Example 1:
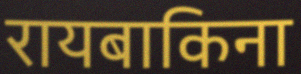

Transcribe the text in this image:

रायबाकिना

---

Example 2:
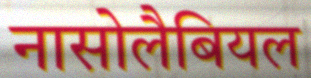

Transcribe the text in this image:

नासोलैबियल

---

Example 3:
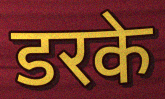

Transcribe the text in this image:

डरके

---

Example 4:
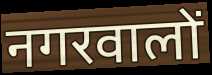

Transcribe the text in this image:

नगरवालों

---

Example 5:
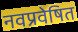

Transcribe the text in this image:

नवप्रवेषित